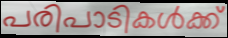
പരിപാടികൾക്ക്